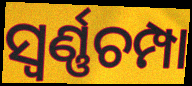
ସ୍ୱର୍ଣ୍ଣଚମ୍ପା